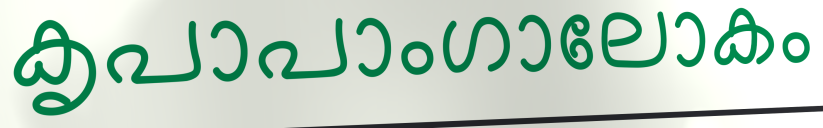
കൃപാപാംഗാലോകം